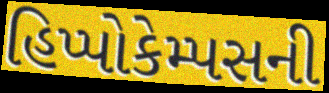
હિપ્પોકેમ્પસની